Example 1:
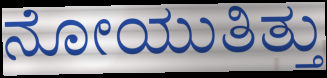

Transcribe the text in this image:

ನೋಯುತಿತ್ತು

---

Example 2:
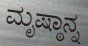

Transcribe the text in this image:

ಮೃಷ್ಠಾನ್ನ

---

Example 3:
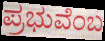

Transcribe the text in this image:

ಪ್ರಭುವೆಂಬ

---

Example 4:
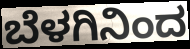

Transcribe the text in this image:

ಬೆಳಗಿನಿಂದ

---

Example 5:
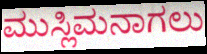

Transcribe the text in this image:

ಮುಸ್ಲಿಮನಾಗಲು